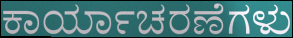
ಕಾರ್ಯಾಚರಣೆಗಳು